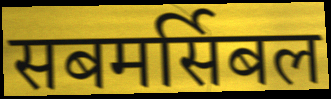
सबमर्सिबल